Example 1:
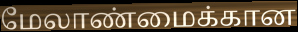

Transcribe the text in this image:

மேலாண்மைக்கான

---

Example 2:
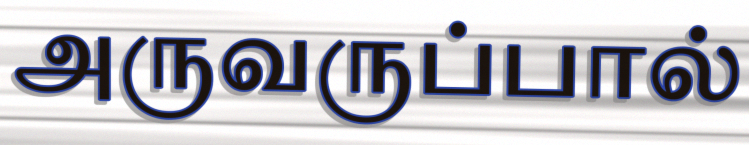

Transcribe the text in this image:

அருவருப்பால்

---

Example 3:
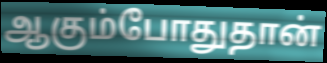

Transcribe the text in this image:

ஆகும்போதுதான்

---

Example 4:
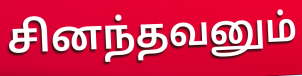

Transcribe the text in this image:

சினந்தவனும்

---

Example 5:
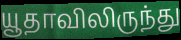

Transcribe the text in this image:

யூதாவிலிருந்து